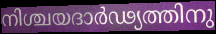
നിശ്ചയദാർഢ്യത്തിനു